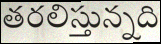
తరలిస్తున్నది